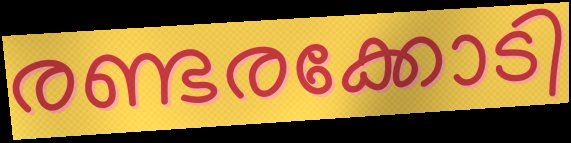
രണ്ടരക്കോടി